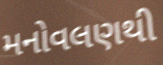
મનોવલણથી